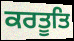
ਕਰਤੂਤਿ